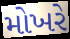
મોખરે